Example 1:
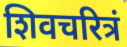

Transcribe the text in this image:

शिवचरित्रं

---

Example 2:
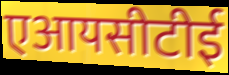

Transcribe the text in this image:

एआयसीटीई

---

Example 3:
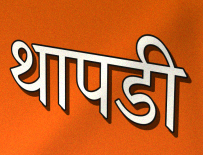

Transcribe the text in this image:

थापडी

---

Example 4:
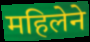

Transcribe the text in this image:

महिलेने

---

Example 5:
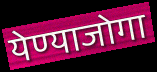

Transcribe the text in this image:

येण्याजोगा